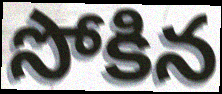
సోకిన